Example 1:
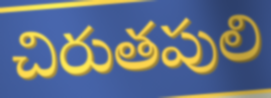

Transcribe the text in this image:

చిరుతపులి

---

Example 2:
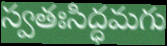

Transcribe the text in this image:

స్వతఃసిద్ధమగు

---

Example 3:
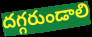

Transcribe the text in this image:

దగ్గరుండాలి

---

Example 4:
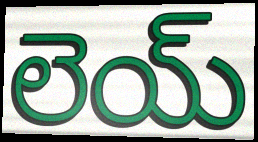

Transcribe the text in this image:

లెయ్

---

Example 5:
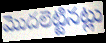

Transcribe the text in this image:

మొదలెట్టినట్లు